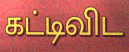
கட்டிவிட